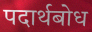
पदार्थबोध